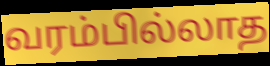
வரம்பில்லாத